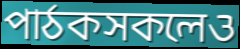
পাঠকসকলেও